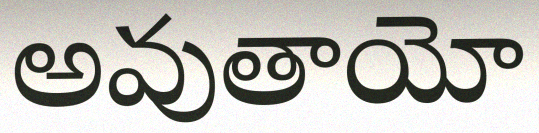
అవుతాయో